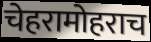
चेहरामोहराच